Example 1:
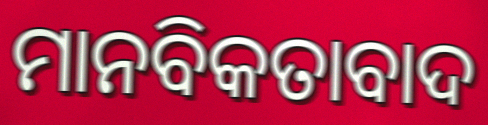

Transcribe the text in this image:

ମାନବିକତାବାଦ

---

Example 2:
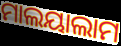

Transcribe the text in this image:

ମାଲୟାଲାମ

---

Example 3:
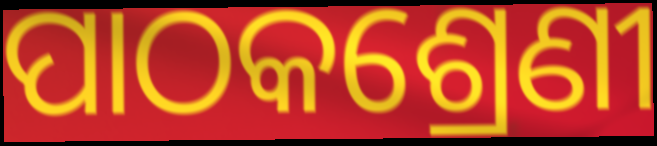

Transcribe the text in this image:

ପାଠକଶ୍ରେଣୀ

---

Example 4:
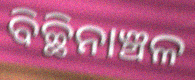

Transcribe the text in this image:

ବିଚ୍ଛିନାଞ୍ଚଳ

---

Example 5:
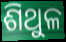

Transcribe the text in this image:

ଶିଥୁଳ